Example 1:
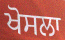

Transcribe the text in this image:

ਖੋਸਲਾ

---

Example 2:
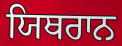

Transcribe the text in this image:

ਯਿਥਰਾਨ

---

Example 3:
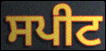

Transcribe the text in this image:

ਸਪੀਟ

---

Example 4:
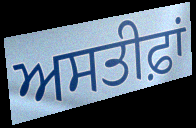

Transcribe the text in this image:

ਅਸਤੀਫ਼ਾਂ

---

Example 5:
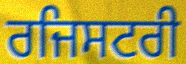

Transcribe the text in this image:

ਰਜਿਸਟਰੀ